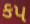
કપ